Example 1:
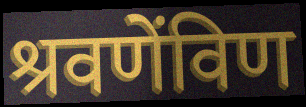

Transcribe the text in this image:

श्रवणेंविण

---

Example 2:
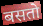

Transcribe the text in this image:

बसतो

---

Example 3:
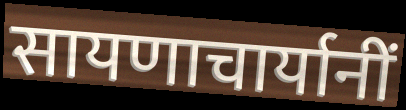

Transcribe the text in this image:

सायणाचार्यानीं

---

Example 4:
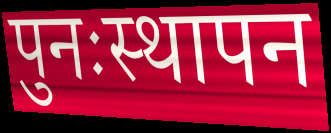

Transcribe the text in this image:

पुनःस्थापन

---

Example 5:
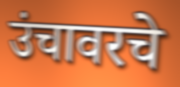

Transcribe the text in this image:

उंचावरचे